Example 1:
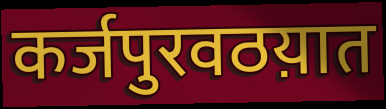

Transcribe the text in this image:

कर्जपुरवठय़ात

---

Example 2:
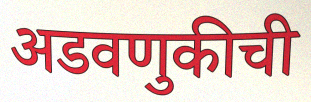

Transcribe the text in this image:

अडवणुकीची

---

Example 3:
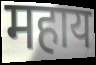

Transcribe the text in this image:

महाय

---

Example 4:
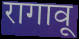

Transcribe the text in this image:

रागावू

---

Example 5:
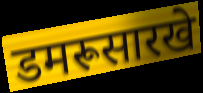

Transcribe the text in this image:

डमरूसारखे